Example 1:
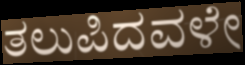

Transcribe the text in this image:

ತಲುಪಿದವಳೇ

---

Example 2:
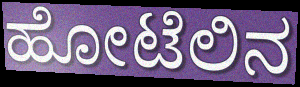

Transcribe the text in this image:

ಹೋಟೆಲಿನ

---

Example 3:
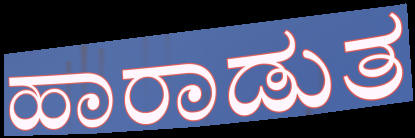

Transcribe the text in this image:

ಹಾರಾಡುತ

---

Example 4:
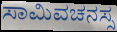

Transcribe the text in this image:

ಸಾಮಿವಚನಸ್ಸ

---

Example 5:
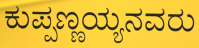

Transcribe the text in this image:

ಕುಪ್ಪಣ್ಣಯ್ಯನವರು